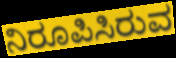
ನಿರೂಪಿಸಿರುವ